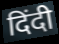
दिंदी